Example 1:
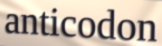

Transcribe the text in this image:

anticodon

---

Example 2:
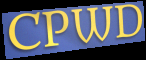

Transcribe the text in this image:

CPWD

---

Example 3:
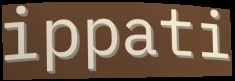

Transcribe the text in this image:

ippati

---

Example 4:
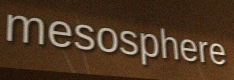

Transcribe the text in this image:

mesosphere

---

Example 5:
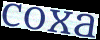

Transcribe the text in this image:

coxa